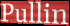
Pullin